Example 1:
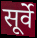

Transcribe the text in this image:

सूर्वे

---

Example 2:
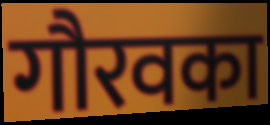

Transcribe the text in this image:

गौरवका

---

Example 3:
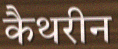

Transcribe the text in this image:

कैथरीन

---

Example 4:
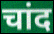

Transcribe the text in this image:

चांद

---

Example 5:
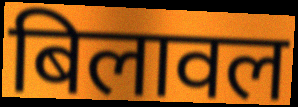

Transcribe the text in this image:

बिलावल